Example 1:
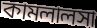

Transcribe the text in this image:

কামলালসা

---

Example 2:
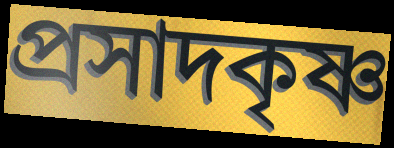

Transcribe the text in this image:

প্রসাদকৃষ্ণ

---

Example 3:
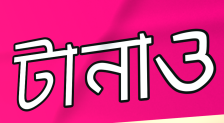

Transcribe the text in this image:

টানাও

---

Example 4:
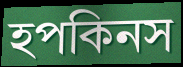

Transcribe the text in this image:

হপকিনস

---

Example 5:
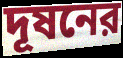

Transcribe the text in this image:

দূষনের